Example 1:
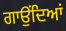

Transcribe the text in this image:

ਗਾਉਂਦਿਆਂ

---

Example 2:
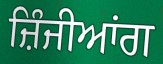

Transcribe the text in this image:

ਜ਼ਿੰਜੀਆਂਗ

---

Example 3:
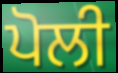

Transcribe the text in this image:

ਪੋਲੀ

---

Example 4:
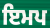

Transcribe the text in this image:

ਇਮਪ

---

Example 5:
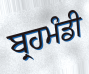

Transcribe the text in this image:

ਬ੍ਰਹਮੰਡੀ